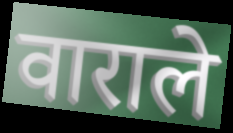
वाराले